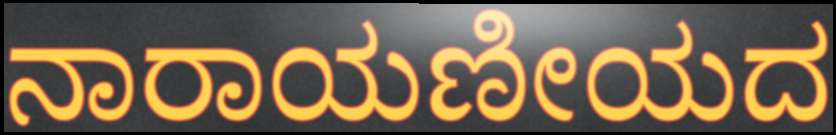
ನಾರಾಯಣೀಯದ